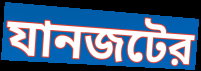
যানজটের